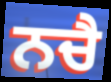
ਨਚੈ